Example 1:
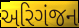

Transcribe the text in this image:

અરિગંજન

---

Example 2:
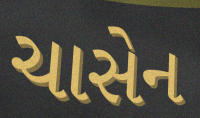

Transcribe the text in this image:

ચાસેન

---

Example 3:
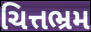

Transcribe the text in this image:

ચિત્તભ્રમ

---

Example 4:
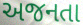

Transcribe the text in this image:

અજનતા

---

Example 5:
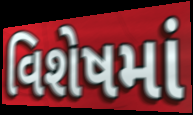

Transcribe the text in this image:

વિશેષમાં